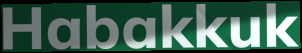
Habakkuk